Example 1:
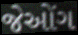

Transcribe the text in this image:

જેઓંગ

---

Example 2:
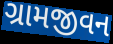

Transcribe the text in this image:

ગ્રામજીવન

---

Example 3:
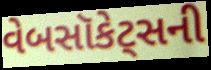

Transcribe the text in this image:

વેબસૉકેટ્સની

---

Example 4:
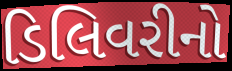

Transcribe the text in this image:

ડિલિવરીનો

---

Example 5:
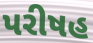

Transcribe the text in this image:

પરીષહ